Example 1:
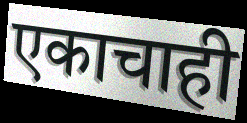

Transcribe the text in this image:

एकाचाही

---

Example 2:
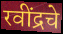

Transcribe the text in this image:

रवींद्रचे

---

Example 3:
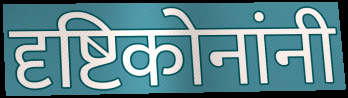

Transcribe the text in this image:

दृष्टिकोनांनी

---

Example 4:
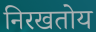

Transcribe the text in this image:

निरखतोय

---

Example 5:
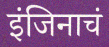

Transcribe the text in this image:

इंजिनाचं